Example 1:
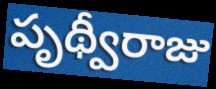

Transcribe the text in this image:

పృథ్వీరాజు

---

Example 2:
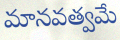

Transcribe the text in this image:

మానవత్వమే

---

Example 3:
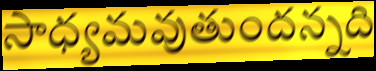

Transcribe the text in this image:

సాధ్యమవుతుందన్నది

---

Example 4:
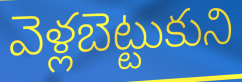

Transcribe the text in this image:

వెళ్లబెట్టుకుని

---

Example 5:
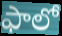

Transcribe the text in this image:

ఫాలో